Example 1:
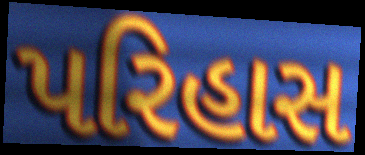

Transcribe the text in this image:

પરિહાસ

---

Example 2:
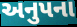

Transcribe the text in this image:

અનુપના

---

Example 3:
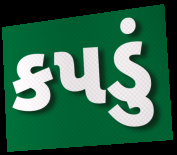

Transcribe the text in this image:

કપડું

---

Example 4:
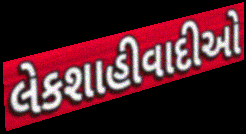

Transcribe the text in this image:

લેકશાહીવાદીઓ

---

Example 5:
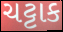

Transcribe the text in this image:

ચટ્ટાક